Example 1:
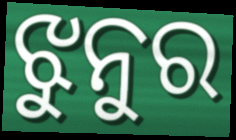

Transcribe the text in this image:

ଝୁନୁର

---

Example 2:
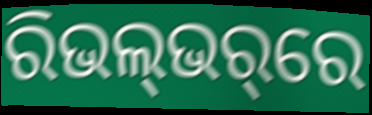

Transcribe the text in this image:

ରିଭଲ୍‌ଭର୍‌ରେ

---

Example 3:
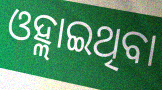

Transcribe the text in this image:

ଓହ୍ଲାଇଥିବା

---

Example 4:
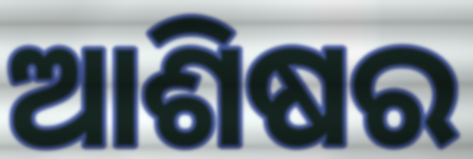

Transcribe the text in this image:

ଆଶିଷର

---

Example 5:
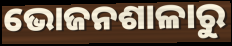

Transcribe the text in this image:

ଭୋଜନଶାଳାରୁ